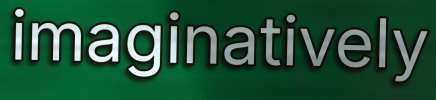
imaginatively